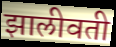
झालीवती